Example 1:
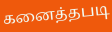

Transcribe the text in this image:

கனைத்தபடி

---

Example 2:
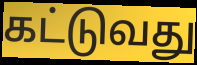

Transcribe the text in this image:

கட்டுவது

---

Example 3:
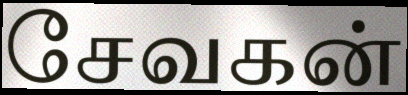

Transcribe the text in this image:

சேவகன்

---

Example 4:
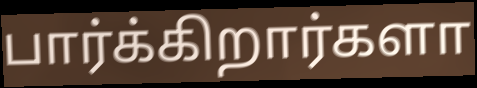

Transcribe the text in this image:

பார்க்கிறார்களா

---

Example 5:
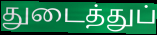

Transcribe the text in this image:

துடைத்துப்